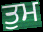
ਤੁਮ